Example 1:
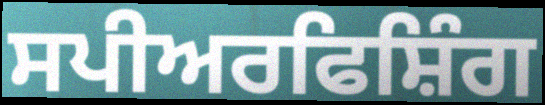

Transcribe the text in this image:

ਸਪੀਅਰਫਿਸ਼ਿੰਗ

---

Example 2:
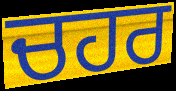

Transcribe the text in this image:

ਚਹਰ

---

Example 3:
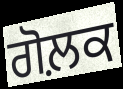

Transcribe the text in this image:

ਗੋਲ਼ਕ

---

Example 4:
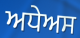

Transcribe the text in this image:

ਅਧੇਅਸ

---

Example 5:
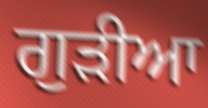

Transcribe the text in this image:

ਗੁਡ਼ੀਆ